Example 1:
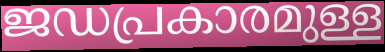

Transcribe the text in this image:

ജഡപ്രകാരമുള്ള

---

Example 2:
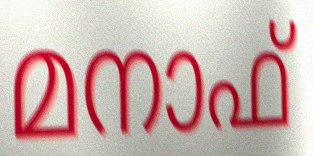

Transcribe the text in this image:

മനാഫ്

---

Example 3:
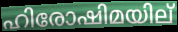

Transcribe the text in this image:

ഹിരോഷിമയില്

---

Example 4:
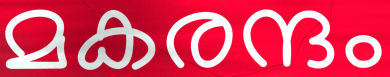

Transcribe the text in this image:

മകരന്ദം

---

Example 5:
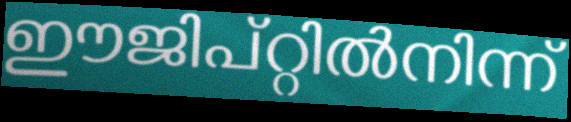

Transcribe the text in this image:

ഈജിപ്റ്റിൽനിന്ന്